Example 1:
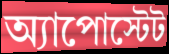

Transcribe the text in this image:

অ্যাপোস্টেট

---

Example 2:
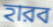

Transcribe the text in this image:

হারব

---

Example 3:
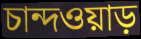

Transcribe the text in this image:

চান্দওয়াড়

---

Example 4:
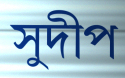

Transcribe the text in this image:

সুদীপ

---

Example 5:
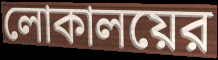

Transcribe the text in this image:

লোকালয়ের